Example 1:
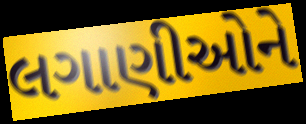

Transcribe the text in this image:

લગાણીઓને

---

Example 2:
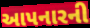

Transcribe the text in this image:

આપનારની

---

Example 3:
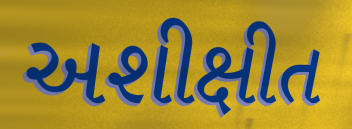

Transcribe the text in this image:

અશીક્ષીત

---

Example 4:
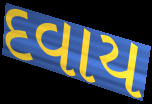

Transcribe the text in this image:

દવાય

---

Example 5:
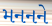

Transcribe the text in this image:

મનનને